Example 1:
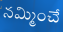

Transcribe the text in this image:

నమ్మించే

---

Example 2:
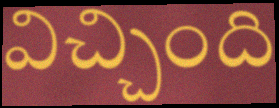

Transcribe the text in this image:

విచ్చింది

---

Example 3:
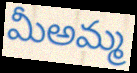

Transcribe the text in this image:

మీఅమ్మ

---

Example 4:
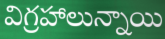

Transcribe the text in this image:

విగ్రహాలున్నాయి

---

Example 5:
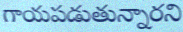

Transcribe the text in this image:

గాయపడుతున్నారని